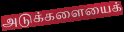
அடுக்களையைக்